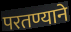
परतण्याने